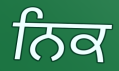
ਨਿਕ